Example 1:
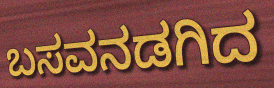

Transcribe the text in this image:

ಬಸವನಡಗಿದ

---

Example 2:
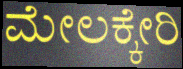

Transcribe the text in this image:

ಮೇಲಕ್ಕೇರಿ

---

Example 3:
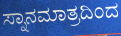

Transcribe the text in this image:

ಸ್ನಾನಮಾತ್ರದಿಂದ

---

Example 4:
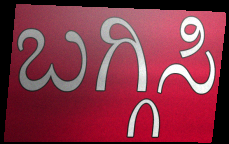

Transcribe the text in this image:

ಬಗ್ಗಿಸಿ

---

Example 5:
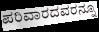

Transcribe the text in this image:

ಪರಿವಾರದವರನ್ನೂ